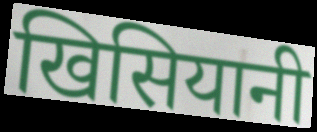
खिसियानी